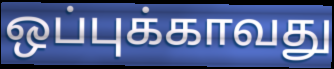
ஒப்புக்காவது